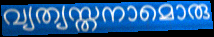
വ്യത്യസ്തനാമൊരു